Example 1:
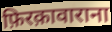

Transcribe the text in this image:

फ़िरक़ावाराना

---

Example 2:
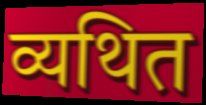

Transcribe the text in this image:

व्यथित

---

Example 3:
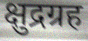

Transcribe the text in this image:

क्षुद्रग्रह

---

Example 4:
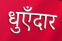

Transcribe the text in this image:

धुएँदार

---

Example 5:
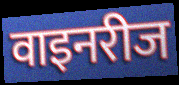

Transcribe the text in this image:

वाइनरीज